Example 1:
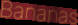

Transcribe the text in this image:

Bananas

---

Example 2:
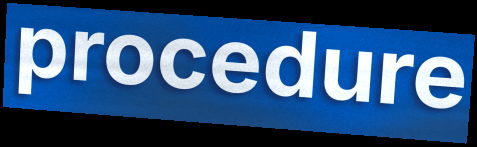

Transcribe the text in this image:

procedure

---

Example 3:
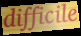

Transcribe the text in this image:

difficile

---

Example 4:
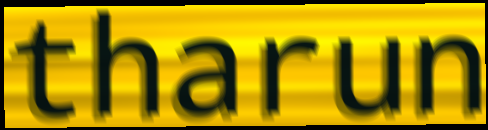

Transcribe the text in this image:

tharun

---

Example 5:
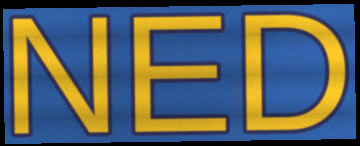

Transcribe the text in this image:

NED